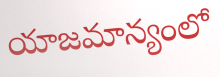
యాజమాన్యంలో